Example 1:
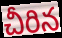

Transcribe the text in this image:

చీరిన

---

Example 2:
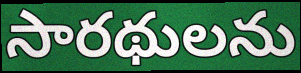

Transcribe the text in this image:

సారథులను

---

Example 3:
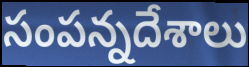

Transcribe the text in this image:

సంపన్నదేశాలు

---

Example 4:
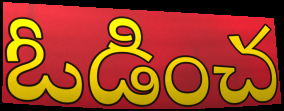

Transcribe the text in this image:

ఓడించ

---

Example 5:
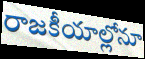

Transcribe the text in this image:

రాజకీయాల్లోనూ